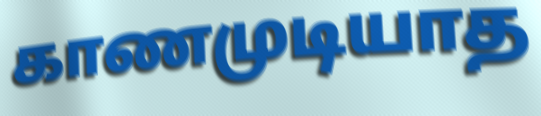
காணமுடியாத